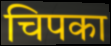
चिपका